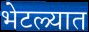
भेटल्यात